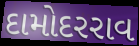
દામોદરરાવ